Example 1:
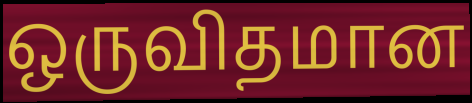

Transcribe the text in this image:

ஒருவிதமான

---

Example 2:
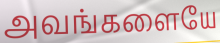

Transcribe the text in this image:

அவங்களையே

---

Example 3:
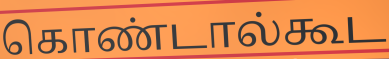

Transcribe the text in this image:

கொண்டால்கூட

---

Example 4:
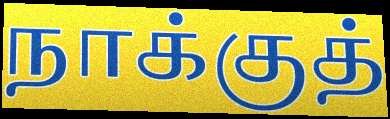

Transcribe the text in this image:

நாக்குத்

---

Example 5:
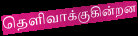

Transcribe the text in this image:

தெளிவாக்குகின்றன